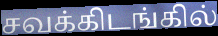
சவக்கிடங்கில்